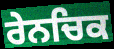
ਰੇਨਚਿਕ